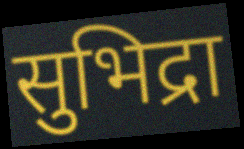
सुभिद्रा